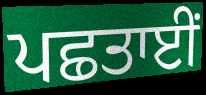
ਪਛਤਾਈਂ